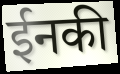
ईनकी